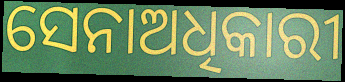
ସେନାଅଧିକାରୀ